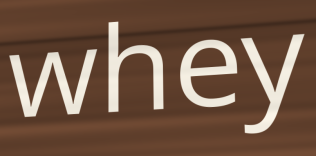
whey